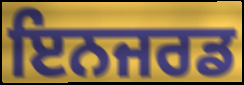
ਇਨਜਰਡ